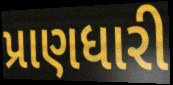
પ્રાણધારી